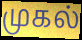
முகல்